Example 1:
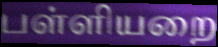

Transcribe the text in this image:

பள்ளியறை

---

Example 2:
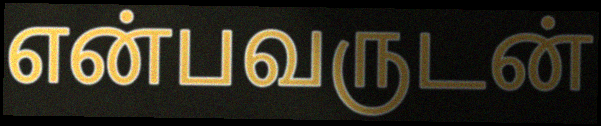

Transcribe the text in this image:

என்பவருடன்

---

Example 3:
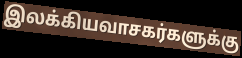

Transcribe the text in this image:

இலக்கியவாசகர்களுக்கு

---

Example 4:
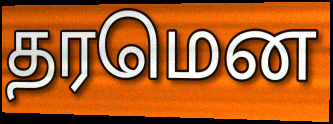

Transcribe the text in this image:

தரமென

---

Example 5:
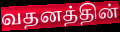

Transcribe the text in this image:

வதனத்தின்